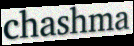
chashma